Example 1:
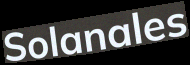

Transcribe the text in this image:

Solanales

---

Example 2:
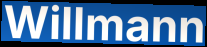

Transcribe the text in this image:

Willmann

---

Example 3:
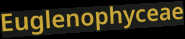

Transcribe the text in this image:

Euglenophyceae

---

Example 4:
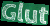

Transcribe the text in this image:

Glut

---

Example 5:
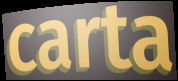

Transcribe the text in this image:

carta